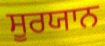
ਸੂਰਯਾਨ